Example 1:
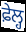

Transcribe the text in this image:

ਫ਼ੇਲ੍ਹ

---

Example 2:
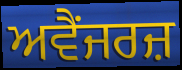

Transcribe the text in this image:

ਅਵੈਂਜਰਜ਼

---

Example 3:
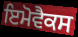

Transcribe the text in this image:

ਇਮੋਵੈਕਸ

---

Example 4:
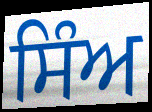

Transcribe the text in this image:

ਸਿੰਅ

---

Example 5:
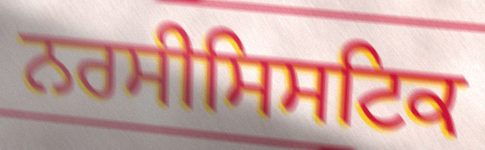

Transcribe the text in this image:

ਨਰਸੀਸਿਸਟਿਕ